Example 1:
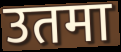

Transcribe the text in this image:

उतमा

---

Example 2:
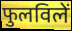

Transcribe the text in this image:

फुलविलें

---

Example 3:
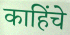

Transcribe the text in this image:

काहिंचे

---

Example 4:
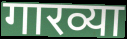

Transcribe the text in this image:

गारव्या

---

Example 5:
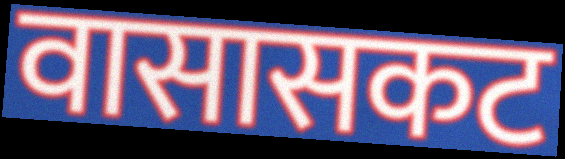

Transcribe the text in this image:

वासासकट